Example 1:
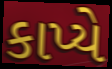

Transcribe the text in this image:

કાપ્યે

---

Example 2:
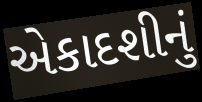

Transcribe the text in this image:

એકાદશીનું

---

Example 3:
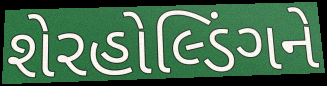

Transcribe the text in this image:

શેરહોલ્ડિંગને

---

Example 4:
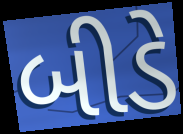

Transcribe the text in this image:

બીડે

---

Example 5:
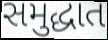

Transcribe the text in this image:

સમુદ્ધાત